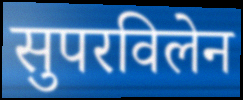
सुपरविलेन